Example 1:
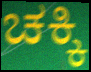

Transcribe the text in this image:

ಚಕ್ಕಿ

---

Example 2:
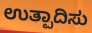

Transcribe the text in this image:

ಉತ್ಪಾದಿಸು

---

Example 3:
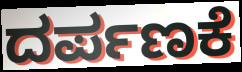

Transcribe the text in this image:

ದರ್ಪಣಕೆ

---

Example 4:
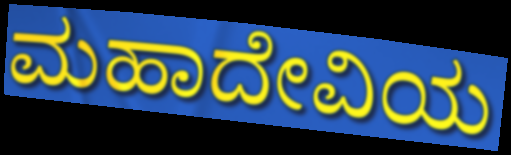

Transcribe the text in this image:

ಮಹಾದೇವಿಯ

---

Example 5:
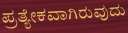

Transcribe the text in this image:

ಪ್ರತ್ಯೇಕವಾಗಿರುವುದು